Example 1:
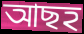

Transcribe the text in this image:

আছহ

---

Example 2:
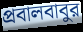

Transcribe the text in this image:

প্রবালবাবুর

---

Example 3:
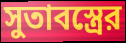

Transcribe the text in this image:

সুতাবস্ত্রের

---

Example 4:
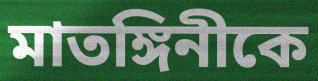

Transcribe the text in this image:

মাতঙ্গিনীকে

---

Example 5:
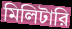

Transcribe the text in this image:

মিলিটারি